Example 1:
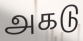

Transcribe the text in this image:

அகடு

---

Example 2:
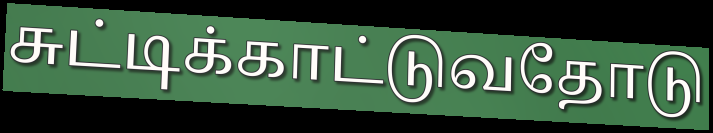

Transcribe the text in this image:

சுட்டிக்காட்டுவதோடு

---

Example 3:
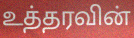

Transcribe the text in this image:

உத்தரவின்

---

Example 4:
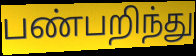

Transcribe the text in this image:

பண்பறிந்து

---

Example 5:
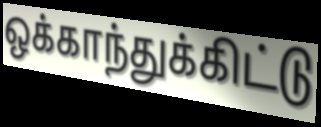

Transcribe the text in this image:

ஒக்காந்துக்கிட்டு